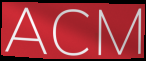
ACM